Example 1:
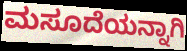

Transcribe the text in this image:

ಮಸೂದೆಯನ್ನಾಗಿ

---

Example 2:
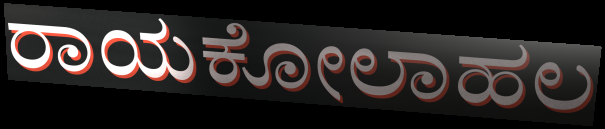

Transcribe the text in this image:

ರಾಯಕೋಲಾಹಲ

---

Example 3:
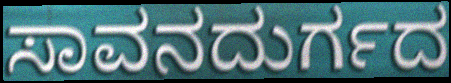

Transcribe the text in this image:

ಸಾವನದುರ್ಗದ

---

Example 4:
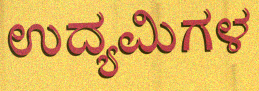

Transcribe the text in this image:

ಉದ್ಯಮಿಗಳ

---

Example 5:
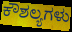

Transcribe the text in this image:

ಕೌಶಲ್ಯಗಳು